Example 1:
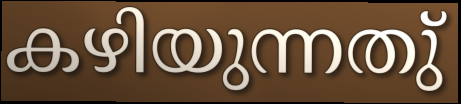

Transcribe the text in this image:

കഴിയുന്നതു്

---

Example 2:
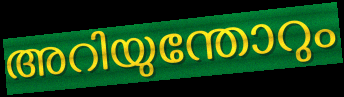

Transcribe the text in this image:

അറിയുന്തോറും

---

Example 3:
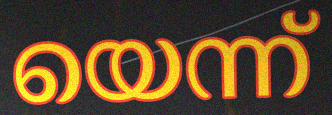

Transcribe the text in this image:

യെന്ന്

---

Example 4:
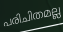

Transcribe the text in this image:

പരിചിതമല്ല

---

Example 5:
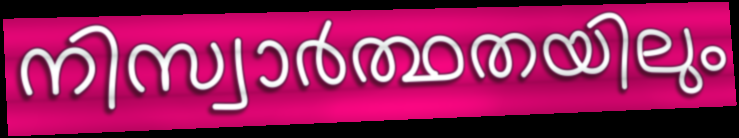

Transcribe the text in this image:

നിസ്വാർത്ഥതയിലും